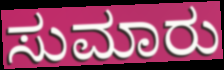
ಸುಮಾರು